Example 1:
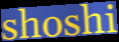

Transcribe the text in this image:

shoshi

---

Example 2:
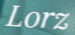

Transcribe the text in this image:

Lorz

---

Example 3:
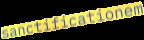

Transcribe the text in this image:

sanctificationem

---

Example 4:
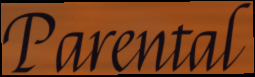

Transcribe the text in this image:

Parental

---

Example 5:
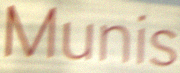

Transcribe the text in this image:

Munis